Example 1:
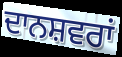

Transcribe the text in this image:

ਦਾਨਸ਼ਵਰਾਂ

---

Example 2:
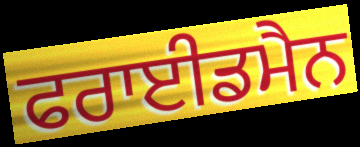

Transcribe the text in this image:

ਫਰਾਈਡਮੈਨ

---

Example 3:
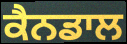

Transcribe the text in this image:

ਕੈਨਡਾਲ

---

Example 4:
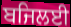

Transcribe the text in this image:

ਬਜਿਲਈ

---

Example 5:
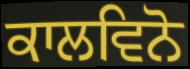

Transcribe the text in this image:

ਕਾਲਵਿਨੋ